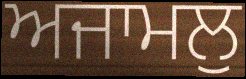
ਅਜਾਮਲੁ